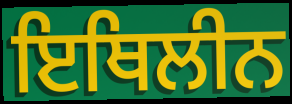
ਇਥਿਲੀਨ